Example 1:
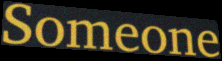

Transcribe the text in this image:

Someone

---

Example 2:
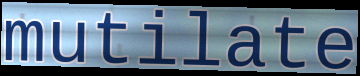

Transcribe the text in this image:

mutilate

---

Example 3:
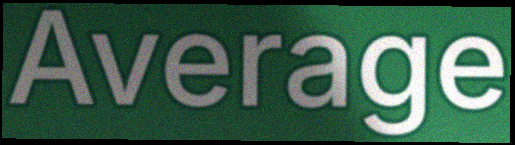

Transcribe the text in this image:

Average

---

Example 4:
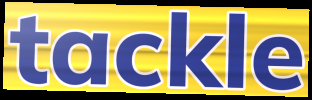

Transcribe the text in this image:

tackle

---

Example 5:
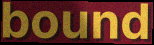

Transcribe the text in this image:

bound